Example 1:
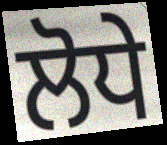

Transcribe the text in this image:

ਲੋਧੇ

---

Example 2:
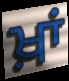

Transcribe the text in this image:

ਖ਼ਾਂ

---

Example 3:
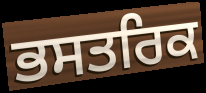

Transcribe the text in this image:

ਭਸਤਰਿਕ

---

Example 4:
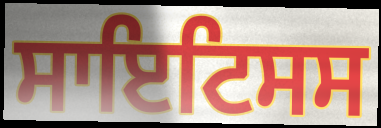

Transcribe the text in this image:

ਸਾਇਟਿਸਸ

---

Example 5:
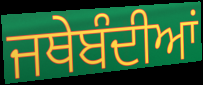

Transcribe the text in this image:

ਜਥੇਬੰਦੀਆਂ